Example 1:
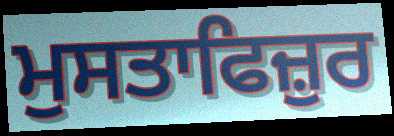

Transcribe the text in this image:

ਮੁਸਤਾਫਿਜ਼ੁਰ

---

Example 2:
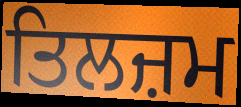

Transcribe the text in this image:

ਤਿਲਜ਼ਮ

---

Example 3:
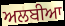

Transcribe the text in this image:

ਅਲਬੀਆ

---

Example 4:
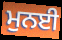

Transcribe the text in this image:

ਮੁਨਈ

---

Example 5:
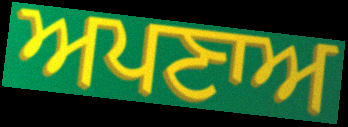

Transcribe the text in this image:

ਅਪਣਾਅ